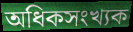
অধিকসংখ্যক